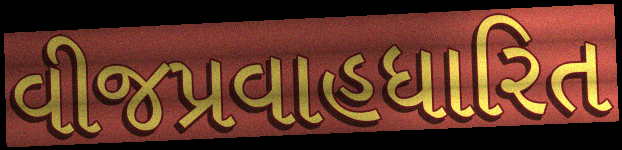
વીજપ્રવાહધારિત